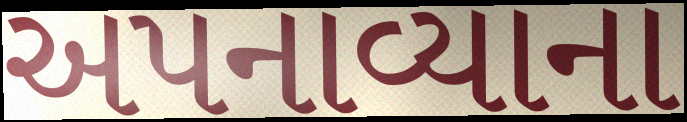
અપનાવ્યાના